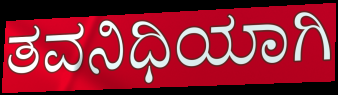
ತವನಿಧಿಯಾಗಿ